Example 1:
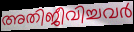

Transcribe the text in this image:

അതിജീവിച്ചവർ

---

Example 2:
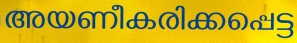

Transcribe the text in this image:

അയണീകരിക്കപ്പെട്ട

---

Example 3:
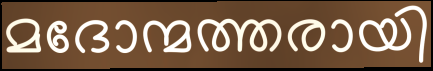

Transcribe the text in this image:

മദോന്മത്തരായി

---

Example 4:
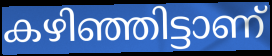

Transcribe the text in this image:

കഴിഞ്ഞിട്ടാണ്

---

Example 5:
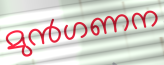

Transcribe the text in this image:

മുൻഗണന